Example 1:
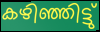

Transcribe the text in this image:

കഴിഞ്ഞിട്ടു്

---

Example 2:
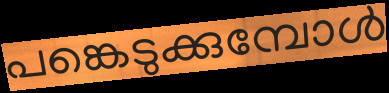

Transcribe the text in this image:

പങ്കെടുക്കുമ്പോൾ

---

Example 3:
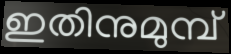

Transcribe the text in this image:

ഇതിനുമുമ്പ്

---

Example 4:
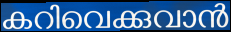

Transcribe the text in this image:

കറിവെക്കുവാൻ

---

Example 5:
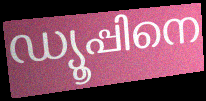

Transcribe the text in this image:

ഡ്യൂപ്പിനെ